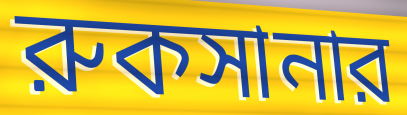
রুকসানার